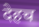
देहच